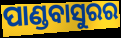
ପାଣ୍ଡବାସୁରର